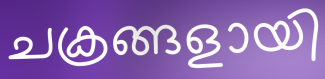
ചക്രങ്ങളായി